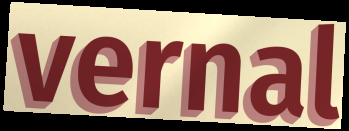
vernal